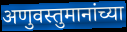
अणुवस्तुमानांच्या